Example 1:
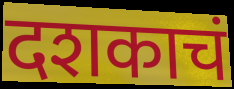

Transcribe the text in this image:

दशकाचं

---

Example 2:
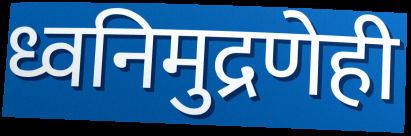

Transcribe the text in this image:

ध्वनिमुद्रणेही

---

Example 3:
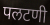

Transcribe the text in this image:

पलटणी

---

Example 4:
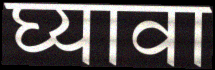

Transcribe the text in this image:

घ्यावा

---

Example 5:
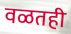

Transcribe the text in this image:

वळतही